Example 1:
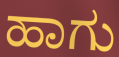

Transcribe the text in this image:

ಹಾಗು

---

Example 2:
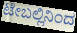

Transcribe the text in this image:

ಟೇಬಲ್ಲಿನಿಂದ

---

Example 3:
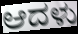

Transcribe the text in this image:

ಆದಳು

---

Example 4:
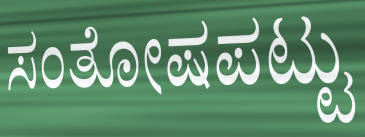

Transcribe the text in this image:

ಸಂತೋಷಪಟ್ಟು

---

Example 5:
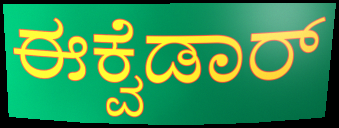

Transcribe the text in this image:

ಈಕ್ವೆಡಾರ್